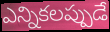
ఎన్నికలప్పుడే